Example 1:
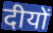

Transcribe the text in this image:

दीयों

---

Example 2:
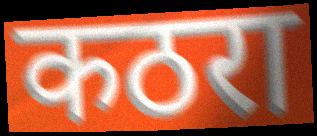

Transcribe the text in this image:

कठरा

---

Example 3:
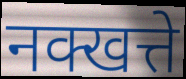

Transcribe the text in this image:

नक्खत्ते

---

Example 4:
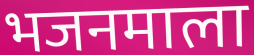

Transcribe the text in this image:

भजनमाला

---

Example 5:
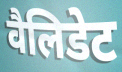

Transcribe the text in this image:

वैलिडेट